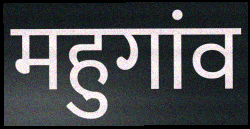
महुगांव